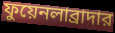
ফুয়েনলাব্রাদার